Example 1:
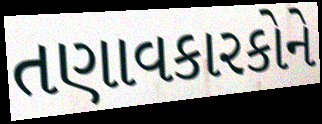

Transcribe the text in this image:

તણાવકારકોને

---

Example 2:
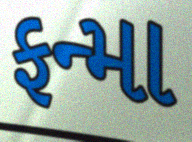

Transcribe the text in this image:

ફન્મા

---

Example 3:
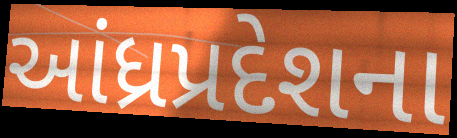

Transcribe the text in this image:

આંધ્રપ્રદેશના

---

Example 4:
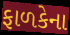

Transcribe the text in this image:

ફાળકેના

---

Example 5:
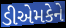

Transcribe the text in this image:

ડીએમકેને